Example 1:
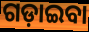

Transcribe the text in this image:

ଗଡ଼ାଇବା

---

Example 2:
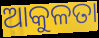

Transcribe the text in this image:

ଆକୁଳତା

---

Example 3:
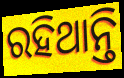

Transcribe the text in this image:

ରହିଥାନ୍ତି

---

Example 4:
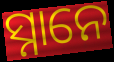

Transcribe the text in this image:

ସ୍ନାନେ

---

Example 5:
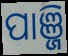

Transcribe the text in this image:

ପାଞ୍ଜି